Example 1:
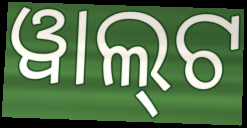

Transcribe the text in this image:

ୱାଲ୍‌ଟ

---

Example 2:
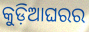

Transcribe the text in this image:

କୁଡ଼ିଆଘରର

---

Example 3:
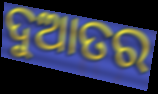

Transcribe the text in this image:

ଦୁଆତର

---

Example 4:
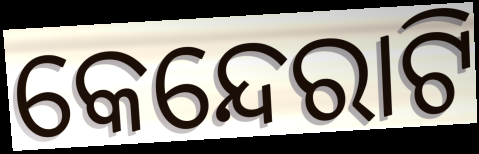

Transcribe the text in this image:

କେନ୍ଦେରାଟି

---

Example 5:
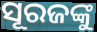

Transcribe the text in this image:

ସୂରଜଙ୍କୁ